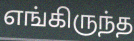
எங்கிருந்த